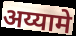
अय्यामे